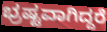
ಭ್ರಷ್ಟವಾಗಿದ್ದರೆ